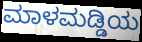
ಮಾಳಮಡ್ಡಿಯ